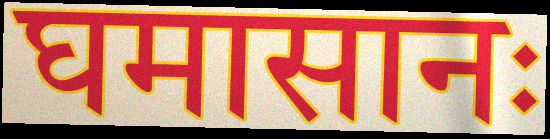
घमासानः